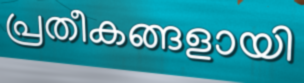
പ്രതീകങ്ങളായി